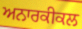
ਅਨਾਰਕੀਕਲ